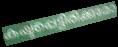
കഷ്ടപ്പെട്ടിരിക്കുമോ